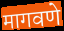
मागवणे